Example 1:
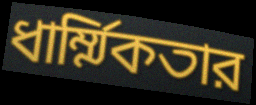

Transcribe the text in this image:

ধার্ম্মিকতার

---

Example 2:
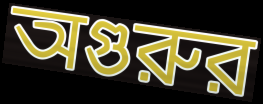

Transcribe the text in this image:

অগুরুর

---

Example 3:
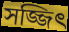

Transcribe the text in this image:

সজ্জিৎ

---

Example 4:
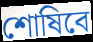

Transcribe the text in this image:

শোষিবে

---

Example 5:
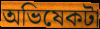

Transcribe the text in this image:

অভিষেকটা